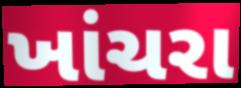
ખાંચરા